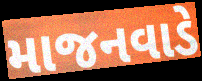
માજનવાડે